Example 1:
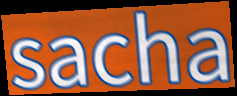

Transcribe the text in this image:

sacha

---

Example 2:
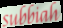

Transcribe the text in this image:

subbiah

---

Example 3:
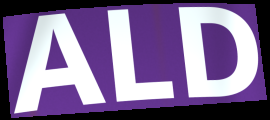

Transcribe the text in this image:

ALD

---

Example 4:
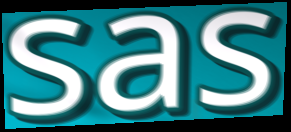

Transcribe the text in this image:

sas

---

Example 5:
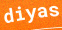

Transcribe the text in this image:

diyas